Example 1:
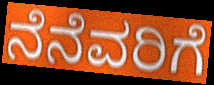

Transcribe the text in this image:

ನೆನೆವರಿಗೆ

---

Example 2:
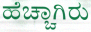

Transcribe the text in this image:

ಹೆಚ್ಚಾಗಿರು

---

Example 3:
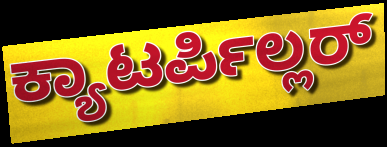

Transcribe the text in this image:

ಕ್ಯಾಟರ್ಪಿಲ್ಲರ್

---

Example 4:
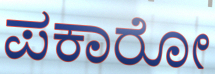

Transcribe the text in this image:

ಪಕಾರೋ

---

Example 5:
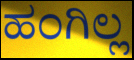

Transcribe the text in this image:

ಹಂಗಿಲ್ಲ